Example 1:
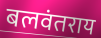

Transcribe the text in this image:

बलवंतराय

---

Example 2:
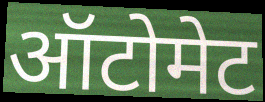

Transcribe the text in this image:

ऑटोमेट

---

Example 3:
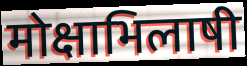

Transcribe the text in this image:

मोक्षाभिलाषी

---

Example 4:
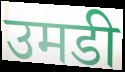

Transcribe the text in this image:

उमडी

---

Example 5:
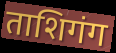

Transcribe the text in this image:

ताशिगंग